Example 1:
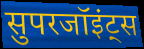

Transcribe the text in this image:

सुपरजॉइंट्स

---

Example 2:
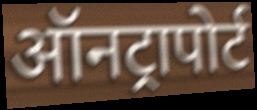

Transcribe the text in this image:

ऑनट्रापोर्ट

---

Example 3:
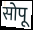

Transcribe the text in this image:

सोपू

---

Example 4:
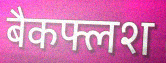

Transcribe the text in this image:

बैकफ्लश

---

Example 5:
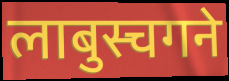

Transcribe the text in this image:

लाबुस्चगने